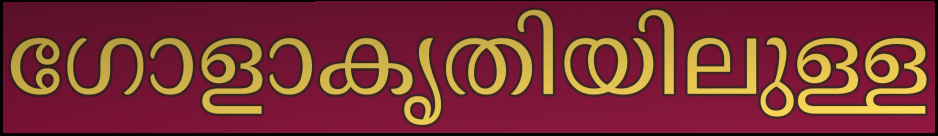
ഗോളാകൃതിയിലുള്ള